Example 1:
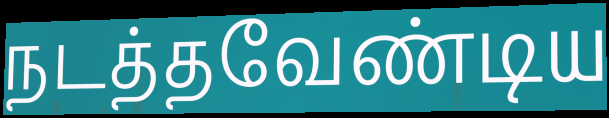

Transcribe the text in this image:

நடத்தவேண்டிய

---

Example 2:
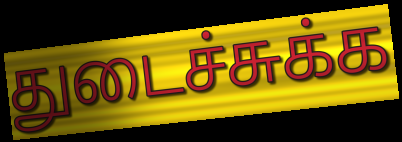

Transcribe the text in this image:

துடைச்சுக்க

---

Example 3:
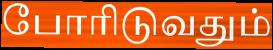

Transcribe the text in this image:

போரிடுவதும்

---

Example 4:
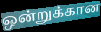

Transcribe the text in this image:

ஒன்றுக்கான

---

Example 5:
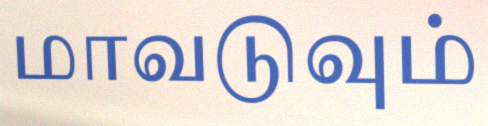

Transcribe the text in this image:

மாவடுவும்